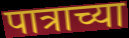
पात्राच्या